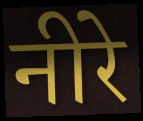
नीरे